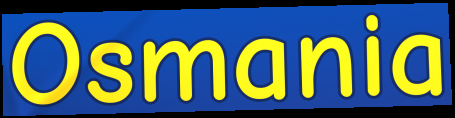
Osmania